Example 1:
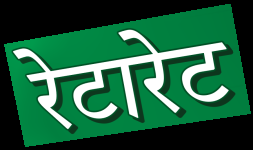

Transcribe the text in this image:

रेटारेट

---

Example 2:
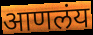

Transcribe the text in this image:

आणलंय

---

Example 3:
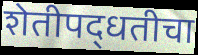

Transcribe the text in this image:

शेतीपद्धतीचा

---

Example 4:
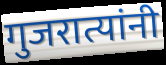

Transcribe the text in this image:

गुजरात्यांनी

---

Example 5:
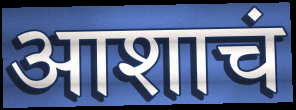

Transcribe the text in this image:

आशाचं